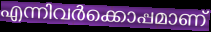
എന്നിവർക്കൊപ്പമാണ്